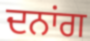
ਦਨਾਂਗ